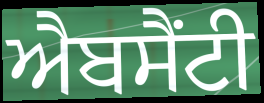
ਐਬਸੈਂਟੀ